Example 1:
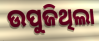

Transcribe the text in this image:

ଉପୁଜିଥିଲା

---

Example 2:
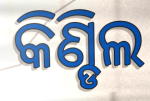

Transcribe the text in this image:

କିଣ୍ଡିଲ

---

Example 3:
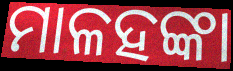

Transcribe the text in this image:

ମାଳହଙ୍କା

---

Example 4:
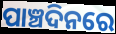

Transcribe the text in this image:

ପାଞ୍ଚଦିନରେ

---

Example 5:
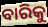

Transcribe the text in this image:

ବାରିକୁ